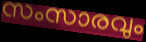
സംസാരവും